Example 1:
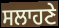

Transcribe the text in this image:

ਸਲਾਹਣੇ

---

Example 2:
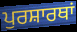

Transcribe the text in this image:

ਪੁਰਸ਼ਾਰਥਾਂ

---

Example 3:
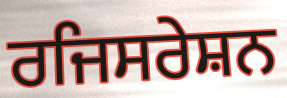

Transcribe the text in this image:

ਰਜਿਸਰੇਸ਼ਨ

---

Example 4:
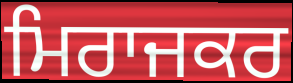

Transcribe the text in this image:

ਮਿਰਾਜਕਰ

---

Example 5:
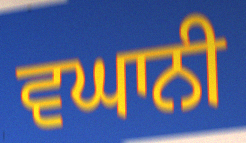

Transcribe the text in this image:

ਵਘਾਨੀ